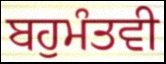
ਬਹੁਮੰਤਵੀ